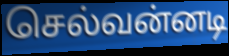
செல்வன்னடி